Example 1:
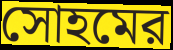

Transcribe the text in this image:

সোহমের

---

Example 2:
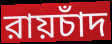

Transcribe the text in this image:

রায়চাঁদ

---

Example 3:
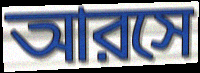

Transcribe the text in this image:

আরসে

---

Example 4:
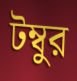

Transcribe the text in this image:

টম্বুর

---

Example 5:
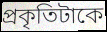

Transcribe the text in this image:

প্রকৃতিটাকে